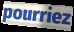
pourriez